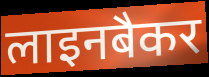
लाइनबैकर